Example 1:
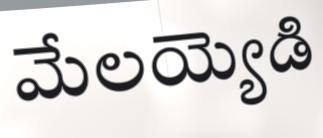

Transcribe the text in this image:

మేలయ్యెడి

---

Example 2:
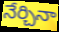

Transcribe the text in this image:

నేర్చినా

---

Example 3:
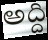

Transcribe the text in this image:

అద్ది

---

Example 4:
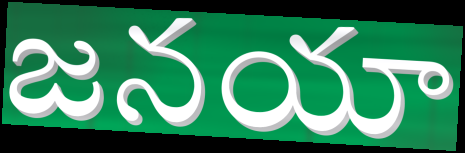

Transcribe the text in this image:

జనయా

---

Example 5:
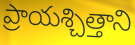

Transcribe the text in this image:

ప్రాయశ్చిత్తాని